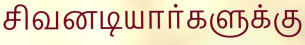
சிவனடியார்களுக்கு